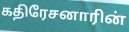
கதிரேசனாரின்